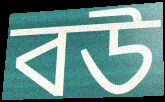
বউ